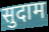
सुदाम